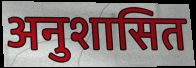
अनुशासित